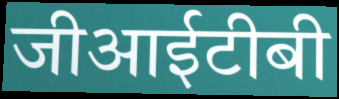
जीआईटीबी